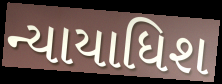
ન્યાયાધિશ